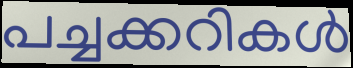
പച്ചക്കറികൾ